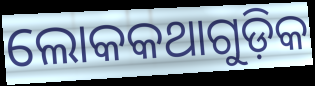
ଲୋକକଥାଗୁଡ଼ିକ